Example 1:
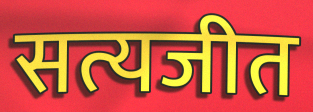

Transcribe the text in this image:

सत्यजीत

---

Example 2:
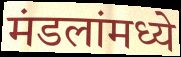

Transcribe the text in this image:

मंडलांमध्ये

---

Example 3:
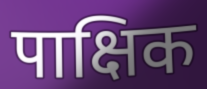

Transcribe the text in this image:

पाक्षिक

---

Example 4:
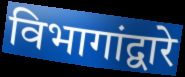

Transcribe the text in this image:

विभागांद्वारे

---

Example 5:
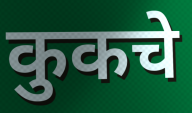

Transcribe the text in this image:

कुकचे